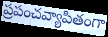
ప్రపంచవ్యాపితంగా